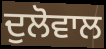
ਦੁਲੋਵਾਲ